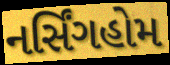
નર્સિંગહોમ